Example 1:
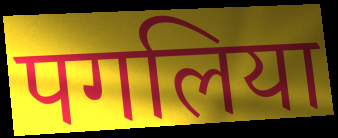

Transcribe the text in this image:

पगलिया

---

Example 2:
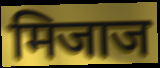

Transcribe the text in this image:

मिजाज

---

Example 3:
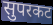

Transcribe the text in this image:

सुपरकट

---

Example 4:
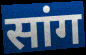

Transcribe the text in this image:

सांग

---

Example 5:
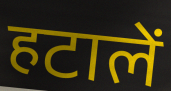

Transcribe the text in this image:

हटालें